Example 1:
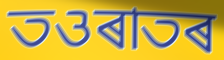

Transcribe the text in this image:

তওৰাতৰ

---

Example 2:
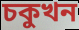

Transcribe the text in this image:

চকুখন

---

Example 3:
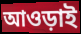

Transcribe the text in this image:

আওড়াই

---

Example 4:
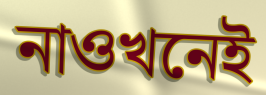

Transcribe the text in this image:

নাওখনেই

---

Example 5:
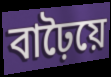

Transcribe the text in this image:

বাঢ়ৈয়ে